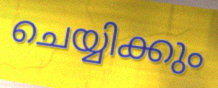
ചെയ്യിക്കും